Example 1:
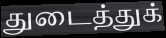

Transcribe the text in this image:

துடைத்துக்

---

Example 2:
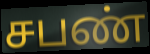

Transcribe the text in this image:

சபண்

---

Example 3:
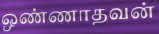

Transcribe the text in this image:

ஒண்ணாதவன்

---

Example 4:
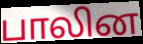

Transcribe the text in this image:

பாலின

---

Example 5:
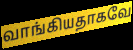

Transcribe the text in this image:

வாங்கியதாகவே